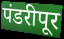
पंडरीपूर